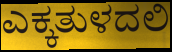
ಎಕ್ಕತುಳದಲಿ